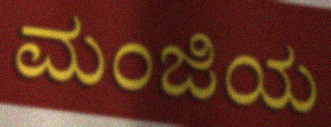
ಮಂಜಿಯ